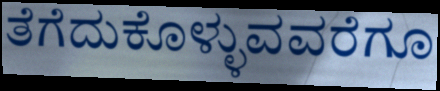
ತೆಗೆದುಕೊಳ್ಳುವವರೆಗೂ